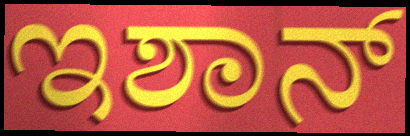
ಇಶಾನ್